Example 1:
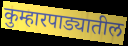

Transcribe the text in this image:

कुम्हारपाड्यातील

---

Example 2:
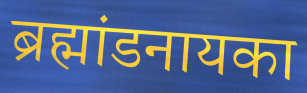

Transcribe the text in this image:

ब्रह्मांडनायका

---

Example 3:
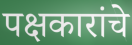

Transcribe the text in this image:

पक्षकारांचे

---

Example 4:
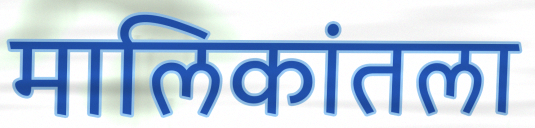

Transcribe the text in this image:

मालिकांतला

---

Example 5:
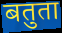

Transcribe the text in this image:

बतुता